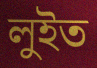
লুইত